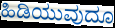
ಹಿಡಿಯುವುದೂ